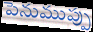
పెనుముప్పు